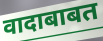
वादाबाबत